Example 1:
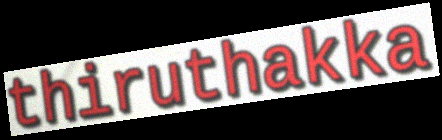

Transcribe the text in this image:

thiruthakka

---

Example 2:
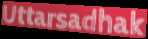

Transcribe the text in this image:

Uttarsadhak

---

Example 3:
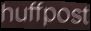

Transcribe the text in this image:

huffpost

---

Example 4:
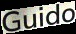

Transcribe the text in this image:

Guido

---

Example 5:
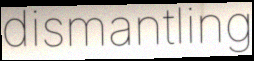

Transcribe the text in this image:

dismantling